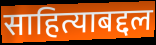
साहित्याबद्दल